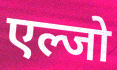
एल्जो